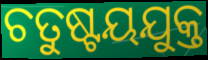
ଚତୁଷ୍ଟୟଯୁକ୍ତ